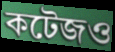
কটেজও